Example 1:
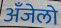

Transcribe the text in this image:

अँजेलो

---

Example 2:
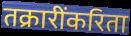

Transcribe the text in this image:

तक्रारींकरिता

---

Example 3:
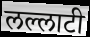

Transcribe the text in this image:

लल्लाटी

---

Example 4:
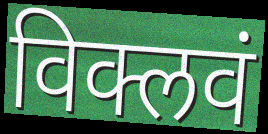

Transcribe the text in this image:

विक्लवं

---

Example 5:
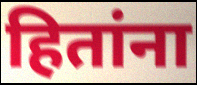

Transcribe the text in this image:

हितांना